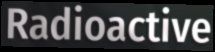
Radioactive